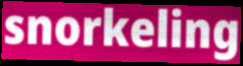
snorkeling